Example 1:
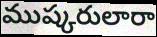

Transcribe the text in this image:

ముష్కరులారా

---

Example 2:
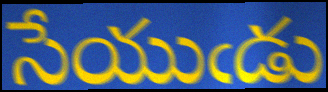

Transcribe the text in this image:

సేయుఁడు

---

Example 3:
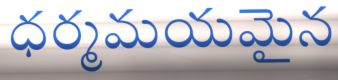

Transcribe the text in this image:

ధర్మమయమైన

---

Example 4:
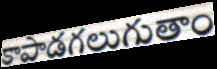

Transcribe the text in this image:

కాపాడగలుగుతాం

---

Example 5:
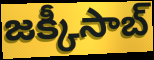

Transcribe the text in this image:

జక్కీసాబ్